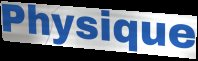
Physique